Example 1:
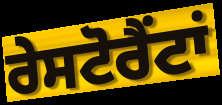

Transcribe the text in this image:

ਰੇਸਟੋਰੈਂਟਾਂ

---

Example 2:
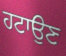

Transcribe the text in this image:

ਹਟਾਉਣ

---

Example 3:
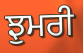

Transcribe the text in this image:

ਝੁਮਰੀ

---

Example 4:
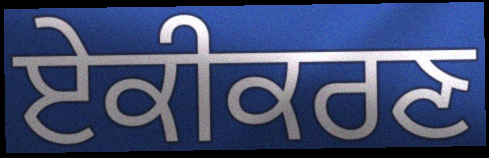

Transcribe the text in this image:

ਏਕੀਕਰਣ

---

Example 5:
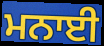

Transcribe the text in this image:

ਮਨਾਈ